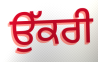
ਉੱਕਰੀ